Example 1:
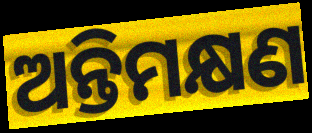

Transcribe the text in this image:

ଅନ୍ତିମକ୍ଷଣ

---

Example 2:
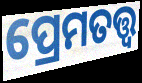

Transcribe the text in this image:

ପ୍ରେମତତ୍ତ୍ୱ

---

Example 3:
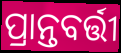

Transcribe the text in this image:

ପ୍ରାନ୍ତବର୍ତ୍ତୀ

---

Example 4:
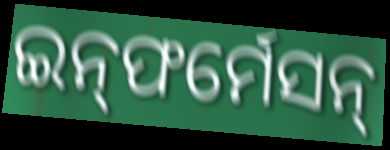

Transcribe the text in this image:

ଇନ୍‍ଫର୍ମେସନ୍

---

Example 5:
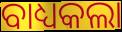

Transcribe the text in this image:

ବାଧ୍ୟକଲା